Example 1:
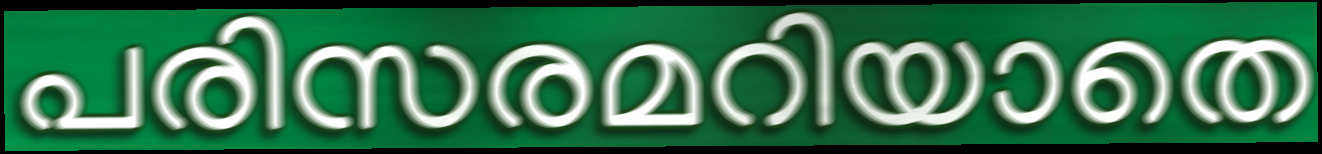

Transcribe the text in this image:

പരിസരമറിയാതെ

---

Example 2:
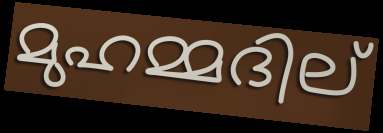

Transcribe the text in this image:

മുഹമ്മദില്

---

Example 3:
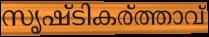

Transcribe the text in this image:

സൃഷ്ടികര്ത്താവ്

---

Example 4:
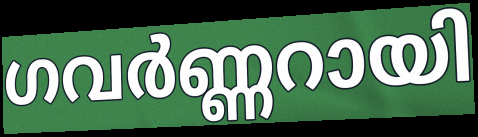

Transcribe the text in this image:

ഗവർണ്ണറായി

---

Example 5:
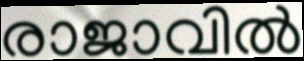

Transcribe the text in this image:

രാജാവിൽ